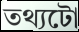
তথ্যটো